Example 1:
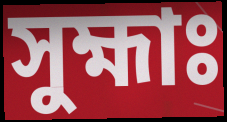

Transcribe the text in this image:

সুহ্মাঃ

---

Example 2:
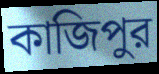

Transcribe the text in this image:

কাজিপুর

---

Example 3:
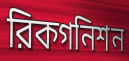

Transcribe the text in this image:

রিকগনিশন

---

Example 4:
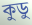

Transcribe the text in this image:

কুডু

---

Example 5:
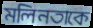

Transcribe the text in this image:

মলিনতাকে